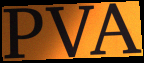
PVA